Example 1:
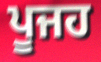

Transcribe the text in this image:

ਪੂਜਹ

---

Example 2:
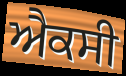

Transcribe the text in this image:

ਐਕਸੀ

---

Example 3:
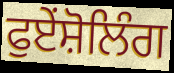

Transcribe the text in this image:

ਫੁਏਂਸ਼ੋਲਿੰਗ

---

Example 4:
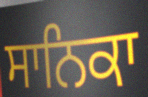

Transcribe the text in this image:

ਸਾਨਿਕਾ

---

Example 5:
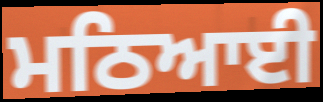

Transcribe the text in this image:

ਮਠਿਆਈ